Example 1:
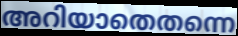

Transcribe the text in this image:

അറിയാതെതന്നെ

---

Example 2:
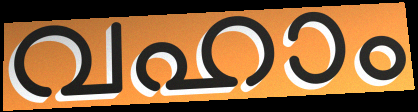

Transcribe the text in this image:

വഹാം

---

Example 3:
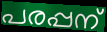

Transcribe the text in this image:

പരപ്പന്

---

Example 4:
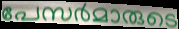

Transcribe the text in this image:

പേസർമാരുടെ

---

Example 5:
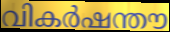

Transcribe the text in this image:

വികർഷന്തൗ